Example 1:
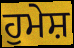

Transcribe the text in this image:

ਹੁਮੇਸ਼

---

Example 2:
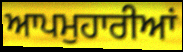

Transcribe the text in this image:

ਆਪਮੁਹਾਰੀਆਂ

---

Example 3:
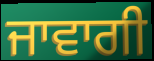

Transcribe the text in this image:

ਜਾਵਾਗੀ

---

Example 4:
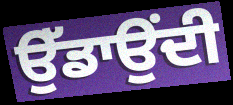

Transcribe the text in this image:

ਉੱਡਾਉਂਦੀ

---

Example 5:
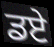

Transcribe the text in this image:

ਡਏ